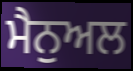
ਮੈਨੁਅਲ